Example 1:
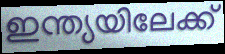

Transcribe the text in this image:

ഇന്ത്യയിലേക്ക്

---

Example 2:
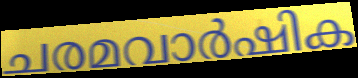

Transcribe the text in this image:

ചരമവാർഷിക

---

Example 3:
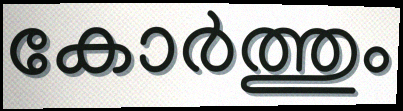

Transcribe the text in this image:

കോർത്തും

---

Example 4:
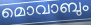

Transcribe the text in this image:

മൊവാബും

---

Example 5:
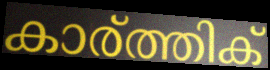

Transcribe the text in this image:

കാര്ത്തിക്